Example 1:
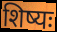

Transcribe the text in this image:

शिष्यः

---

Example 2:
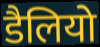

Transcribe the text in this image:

डैलियो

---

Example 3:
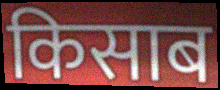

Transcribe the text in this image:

किसाब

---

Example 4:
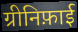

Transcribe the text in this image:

ग्रीनिफ़ाई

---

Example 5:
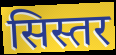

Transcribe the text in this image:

सिस्तर